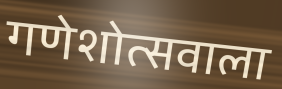
गणेशोत्सवाला